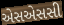
એસએસસી